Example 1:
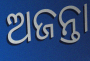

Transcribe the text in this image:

ଅଜନ୍ତା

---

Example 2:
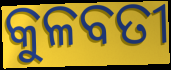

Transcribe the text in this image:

କୁଳବତୀ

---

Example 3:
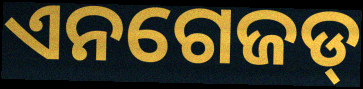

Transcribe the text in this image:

ଏନଗେଜଡ୍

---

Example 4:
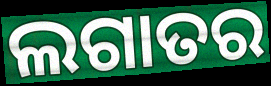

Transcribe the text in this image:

ଲଗାତର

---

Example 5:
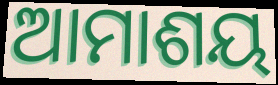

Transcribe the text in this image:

ଆମାଶୟ